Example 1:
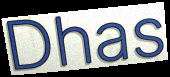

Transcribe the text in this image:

Dhas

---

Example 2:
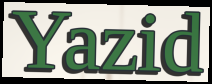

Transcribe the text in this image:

Yazid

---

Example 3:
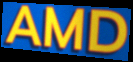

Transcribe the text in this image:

AMD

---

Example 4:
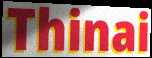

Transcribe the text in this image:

Thinai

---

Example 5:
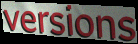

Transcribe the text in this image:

versions